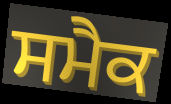
ਸਮੈਕ